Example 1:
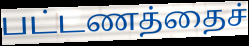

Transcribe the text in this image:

பட்டணத்தைச்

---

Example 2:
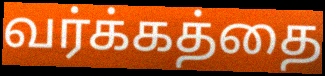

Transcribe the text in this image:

வர்க்கத்தை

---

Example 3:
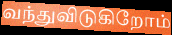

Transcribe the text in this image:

வந்துவிடுகிறோம்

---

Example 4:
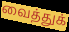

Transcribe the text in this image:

வைத்துக்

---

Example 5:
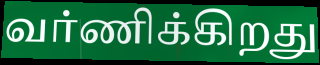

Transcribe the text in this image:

வர்ணிக்கிறது